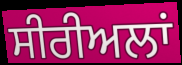
ਸੀਰੀਅਲਾਂ